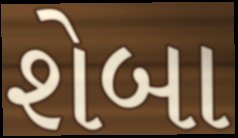
શેબા